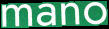
mano